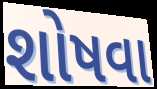
શોષવા